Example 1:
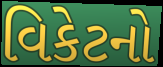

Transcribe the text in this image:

વિકેટનો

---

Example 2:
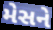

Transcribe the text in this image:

મેસને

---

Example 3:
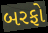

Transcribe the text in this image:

બરફો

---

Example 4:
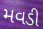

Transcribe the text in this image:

મવડી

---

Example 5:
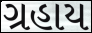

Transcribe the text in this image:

ગ્રહાય